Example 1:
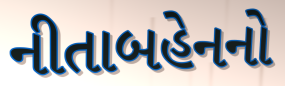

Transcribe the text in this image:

નીતાબહેનનો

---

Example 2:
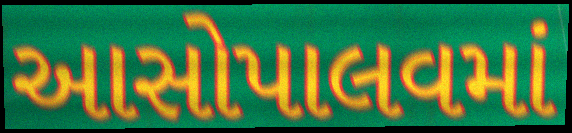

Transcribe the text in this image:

આસોપાલવમાં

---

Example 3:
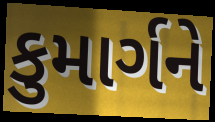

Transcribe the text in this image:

કુમાર્ગને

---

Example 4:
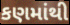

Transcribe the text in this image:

કણમાંથી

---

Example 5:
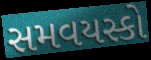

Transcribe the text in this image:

સમવયસ્કો